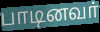
பாடினவர்